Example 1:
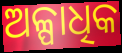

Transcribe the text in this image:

ଅଳ୍ପାଧିକ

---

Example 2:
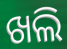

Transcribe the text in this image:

ଖଲି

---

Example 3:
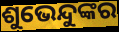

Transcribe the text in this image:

ଶୁଭେନ୍ଦୁଙ୍କର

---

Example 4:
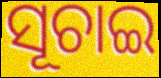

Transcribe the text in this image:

ସୂଚାଇ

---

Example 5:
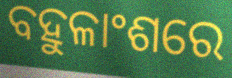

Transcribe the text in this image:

ବହୁଳାଂଶରେ